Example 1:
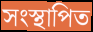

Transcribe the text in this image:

সংস্থাপিত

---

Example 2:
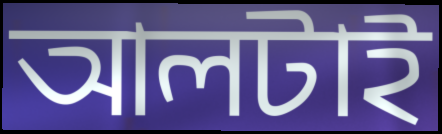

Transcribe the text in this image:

আলটাই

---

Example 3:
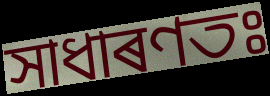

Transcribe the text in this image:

সাধাৰণতঃ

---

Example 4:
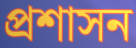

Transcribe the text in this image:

প্ৰশাসন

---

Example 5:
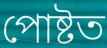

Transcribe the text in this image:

পোষ্টত